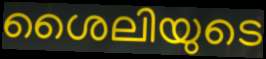
ശൈലിയുടെ